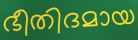
ഭീതിദമായ